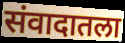
संवादातला